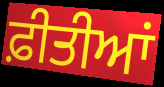
ਫ਼ੀਤੀਆਂ